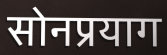
सोनप्रयाग